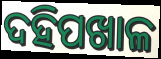
ଦହିପଖାଳ